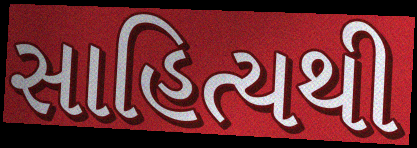
સાહિત્યથી